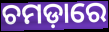
ଚମଡ଼ାରେ